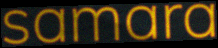
samara